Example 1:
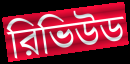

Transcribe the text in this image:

রিভিউড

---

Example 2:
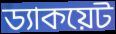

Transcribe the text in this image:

ড্যাকয়েট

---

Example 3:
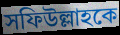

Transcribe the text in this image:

সফিউল্লাহকে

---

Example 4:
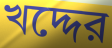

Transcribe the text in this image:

খদ্দের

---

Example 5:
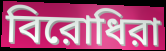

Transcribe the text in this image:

বিরোধিরা